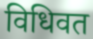
विधिवत